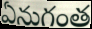
ఏనుగంత